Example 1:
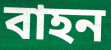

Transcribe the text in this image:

বাহন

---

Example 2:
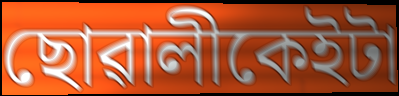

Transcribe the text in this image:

ছোৱালীকেইটা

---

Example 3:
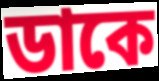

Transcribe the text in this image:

ডাকে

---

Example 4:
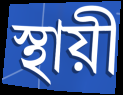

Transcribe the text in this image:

স্থায়ী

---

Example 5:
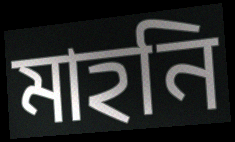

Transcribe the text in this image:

মাহনি